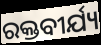
ରକ୍ତବୀର୍ଯ୍ୟ